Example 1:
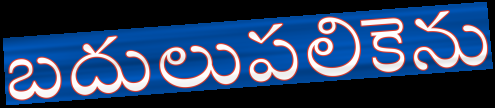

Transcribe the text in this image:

బదులుపలికెను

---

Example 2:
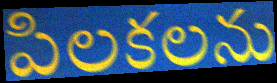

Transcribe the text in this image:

పిలకలను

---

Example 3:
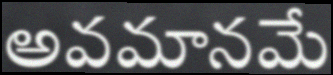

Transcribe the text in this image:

అవమానమే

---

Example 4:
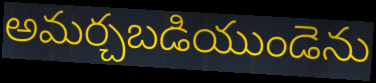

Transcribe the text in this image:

అమర్చబడియుండెను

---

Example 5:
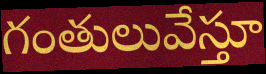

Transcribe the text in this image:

గంతులువేస్తూ